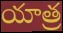
యాత్ర